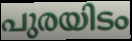
പുരയിടം